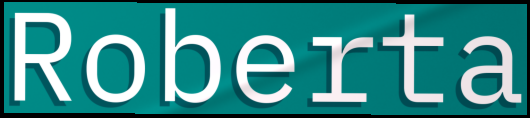
Roberta